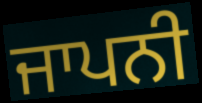
ਜਾਪਨੀ